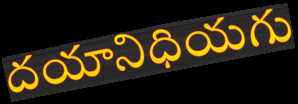
దయానిధియగు